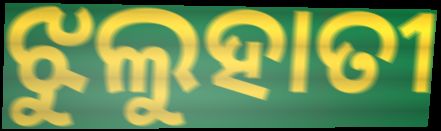
ଝୁଲୁହାତୀ